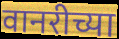
वानरीच्या